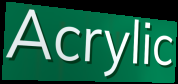
Acrylic